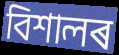
বিশালৰ